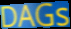
DAGs